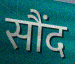
सौंद